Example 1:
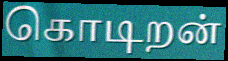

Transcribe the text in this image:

கொடிறன்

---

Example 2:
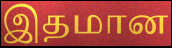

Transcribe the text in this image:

இதமான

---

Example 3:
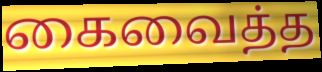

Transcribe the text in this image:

கைவைத்த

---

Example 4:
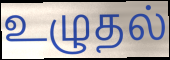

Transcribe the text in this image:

உழுதல்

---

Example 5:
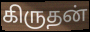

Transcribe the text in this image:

கிருதன்